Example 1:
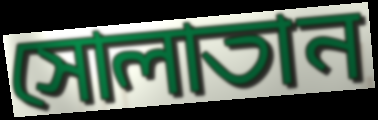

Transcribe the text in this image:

সোলাতান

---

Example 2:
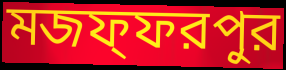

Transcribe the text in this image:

মজফ্ফরপুর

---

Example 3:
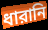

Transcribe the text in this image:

ধারানি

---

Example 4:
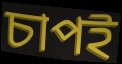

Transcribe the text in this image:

চাপই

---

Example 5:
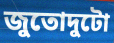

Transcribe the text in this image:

জুতোদুটো